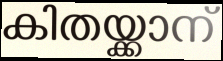
കിതയ്ക്കാന്